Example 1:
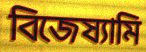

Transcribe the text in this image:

বিজেষ্যামি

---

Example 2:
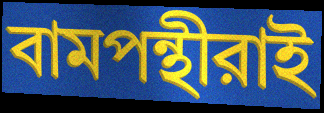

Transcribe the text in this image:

বামপন্থীরাই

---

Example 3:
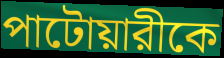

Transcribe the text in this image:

পাটোয়ারীকে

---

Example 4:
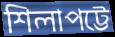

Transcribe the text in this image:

শিলাপট্টে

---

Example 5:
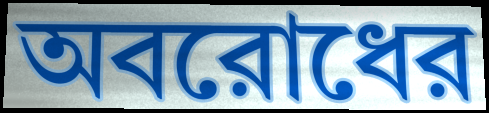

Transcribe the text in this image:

অবরোধের